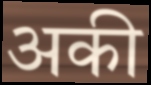
अकी